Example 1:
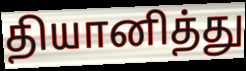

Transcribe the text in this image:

தியானித்து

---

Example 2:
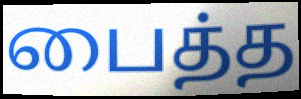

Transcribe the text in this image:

பைத்த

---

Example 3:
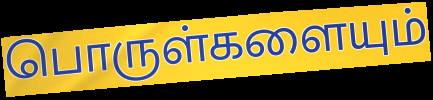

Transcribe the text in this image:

பொருள்களையும்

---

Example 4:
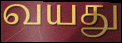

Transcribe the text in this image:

வயது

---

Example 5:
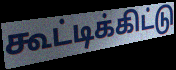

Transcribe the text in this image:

கூட்டிக்கிட்டு